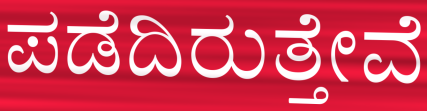
ಪಡೆದಿರುತ್ತೇವೆ